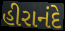
હીરાનંદે